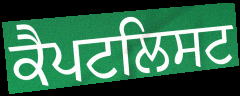
ਕੈਪਟਲਿਸਟ